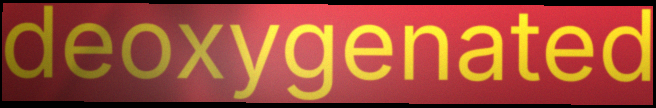
deoxygenated